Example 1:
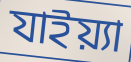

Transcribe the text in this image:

যাইয়্যা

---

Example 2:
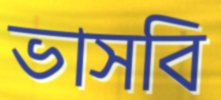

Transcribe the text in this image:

ভাসবি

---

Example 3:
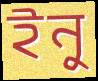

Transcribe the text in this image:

ইনু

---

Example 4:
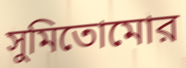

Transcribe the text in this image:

সুমিতোমোর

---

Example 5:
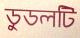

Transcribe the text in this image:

ডুডলটি